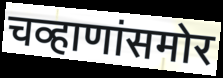
चव्हाणांसमोर